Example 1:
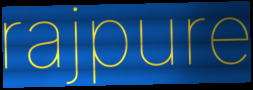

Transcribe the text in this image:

rajpure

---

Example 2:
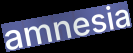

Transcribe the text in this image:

amnesia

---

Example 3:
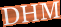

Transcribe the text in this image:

DHM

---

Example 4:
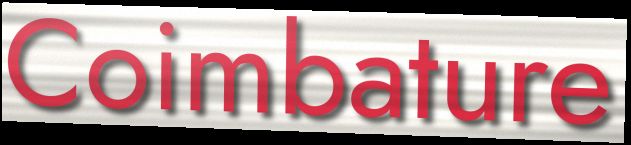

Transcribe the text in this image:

Coimbature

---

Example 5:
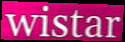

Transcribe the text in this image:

wistar